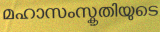
മഹാസംസ്കൃതിയുടെ